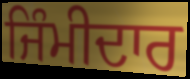
ਜਿੰਮੀਦਾਰ